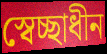
স্বেচ্ছাধীন